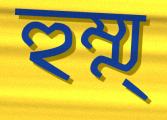
হুম্ম্